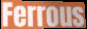
Ferrous